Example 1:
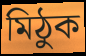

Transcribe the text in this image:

মিঠুক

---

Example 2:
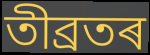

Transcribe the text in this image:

তীব্ৰতৰ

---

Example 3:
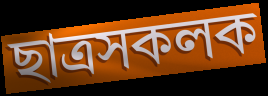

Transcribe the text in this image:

ছাত্ৰসকলক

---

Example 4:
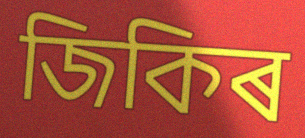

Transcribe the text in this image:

জিকিৰ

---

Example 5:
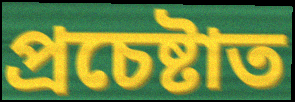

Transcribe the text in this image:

প্ৰচেষ্টাত